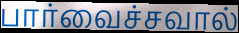
பார்வைச்சவால்